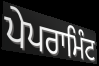
ਪੇਪਰਾਮਿੰਟ